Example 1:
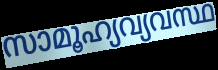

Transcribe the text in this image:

സാമൂഹ്യവ്യവസ്ഥ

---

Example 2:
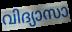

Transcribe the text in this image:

വിദ്യാസാ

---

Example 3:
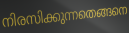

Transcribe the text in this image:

നിരസിക്കുന്നതെങ്ങനെ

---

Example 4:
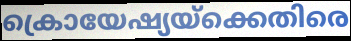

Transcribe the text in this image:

ക്രൊയേഷ്യയ്ക്കെതിരെ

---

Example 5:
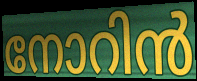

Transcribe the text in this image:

നോറിൻ